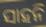
ସାହନି